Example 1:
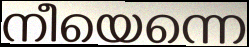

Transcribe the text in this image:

നീയെന്നെ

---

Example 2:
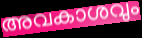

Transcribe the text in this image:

അവകാശവും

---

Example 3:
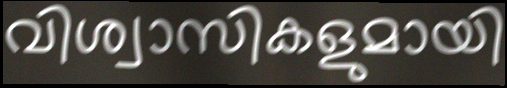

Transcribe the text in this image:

വിശ്വാസികളുമായി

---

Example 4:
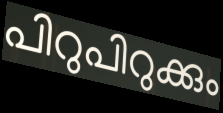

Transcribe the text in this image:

പിറുപിറുക്കും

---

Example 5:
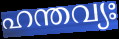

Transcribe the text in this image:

ഹന്തവ്യഃ